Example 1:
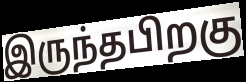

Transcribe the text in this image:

இருந்தபிறகு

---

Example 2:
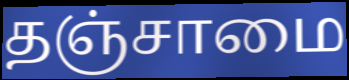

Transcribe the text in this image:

தஞ்சாமை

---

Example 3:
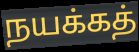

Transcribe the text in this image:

நயக்கத்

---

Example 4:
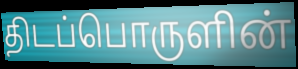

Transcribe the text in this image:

திடப்பொருளின்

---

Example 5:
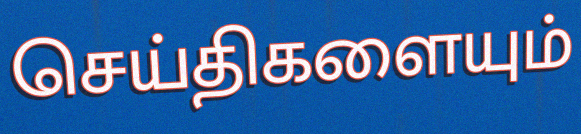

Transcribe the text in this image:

செய்திகளையும்